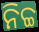
ନିଚ୍ଚ